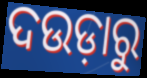
ଦଉଡ଼ାରୁ